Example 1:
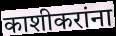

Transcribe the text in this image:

काशीकरांना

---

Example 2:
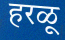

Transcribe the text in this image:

हरळू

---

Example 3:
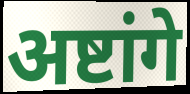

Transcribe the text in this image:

अष्टांगे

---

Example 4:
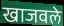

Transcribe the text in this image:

खाजवले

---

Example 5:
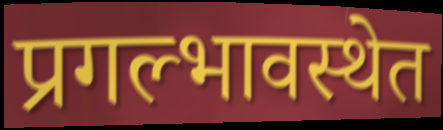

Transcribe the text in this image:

प्रगल्भावस्थेत